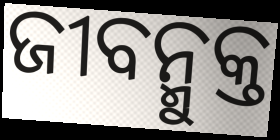
ଜୀବନ୍ମୁକ୍ତ